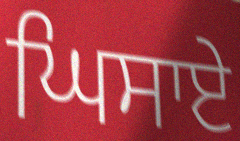
ਘਿਸਾਏ